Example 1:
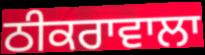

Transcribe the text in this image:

ਠੀਕਰਾਵਾਲਾ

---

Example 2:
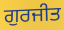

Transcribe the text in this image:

ਗੁਰਜੀਤ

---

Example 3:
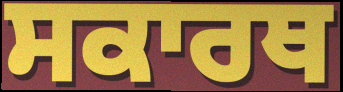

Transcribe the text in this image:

ਸਕਾਰਥ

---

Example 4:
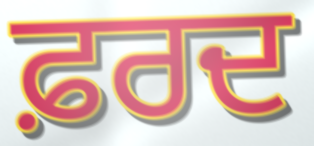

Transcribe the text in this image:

ਫ਼ਰਦ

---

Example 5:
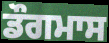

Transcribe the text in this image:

ਡੌਗਮਾਸ